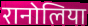
रानोलिया